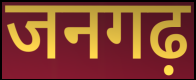
जनगढ़